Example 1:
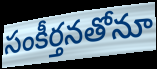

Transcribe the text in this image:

సంకీర్తనతోనూ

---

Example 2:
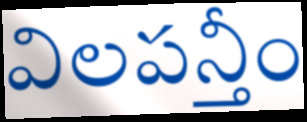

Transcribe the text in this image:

విలపన్తీం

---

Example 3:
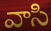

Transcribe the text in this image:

వాసి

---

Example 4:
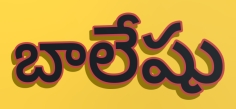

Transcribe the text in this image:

బాలేషు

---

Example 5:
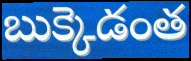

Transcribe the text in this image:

బుక్కెడంత